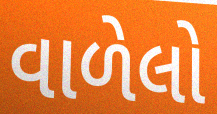
વાળેલો